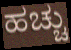
ಹಚ್ಚು